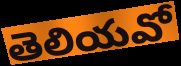
తెలియవో